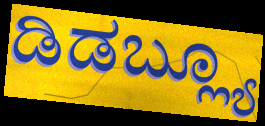
ಡಿಡಬ್ಲ್ಯೂ